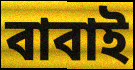
বাবাই